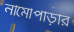
নামোপাড়ার